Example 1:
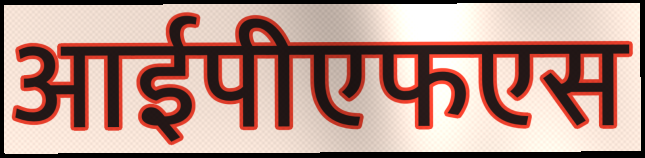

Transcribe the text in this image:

आईपीएफएस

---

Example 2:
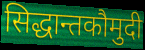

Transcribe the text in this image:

सिद्धान्तकौमुदी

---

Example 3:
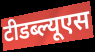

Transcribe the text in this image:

टीडब्ल्यूएस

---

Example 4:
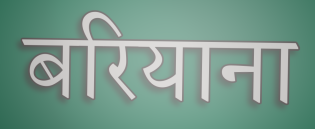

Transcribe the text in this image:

बरियाना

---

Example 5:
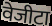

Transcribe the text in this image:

वेजीटा